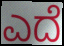
ಎದೆ